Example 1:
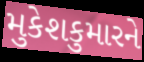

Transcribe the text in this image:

મુકેશકુમારને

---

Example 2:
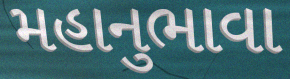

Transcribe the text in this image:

મહાનુભાવા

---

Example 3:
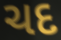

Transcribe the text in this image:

ચદ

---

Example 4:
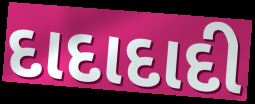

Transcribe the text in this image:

દાદાદાદી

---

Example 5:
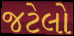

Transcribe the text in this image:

જટેલો